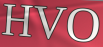
HVO